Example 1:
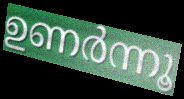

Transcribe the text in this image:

ഉണർന്നൂ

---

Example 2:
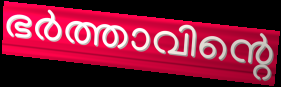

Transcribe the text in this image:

ഭർത്താവിന്റെ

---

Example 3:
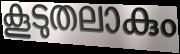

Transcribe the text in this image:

കൂടുതലാകും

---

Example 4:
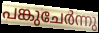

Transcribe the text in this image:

പങ്കുചേർന്നു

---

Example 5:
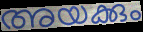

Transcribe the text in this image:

അയക്കും